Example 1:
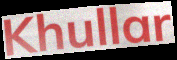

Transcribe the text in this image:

Khullar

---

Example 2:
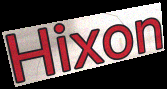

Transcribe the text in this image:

Hixon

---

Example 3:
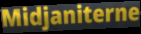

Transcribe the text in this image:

Midjaniterne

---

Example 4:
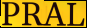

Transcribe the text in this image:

PRAL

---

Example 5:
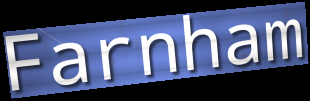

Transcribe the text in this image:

Farnham